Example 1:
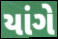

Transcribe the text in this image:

યાંગે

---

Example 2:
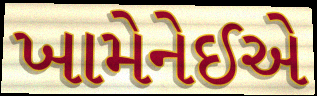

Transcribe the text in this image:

ખામેનેઈએ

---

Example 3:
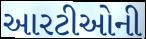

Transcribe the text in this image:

આરટીઓની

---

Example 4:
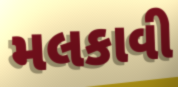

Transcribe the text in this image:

મલકાવી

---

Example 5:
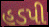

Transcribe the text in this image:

હડપી